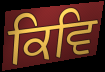
ਕਿਵਿ